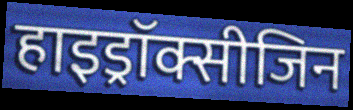
हाइड्रॉक्सीजिन